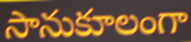
సానుకూలంగా